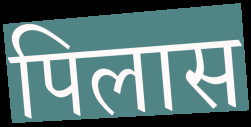
पिलास